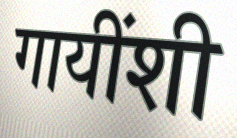
गायींशी